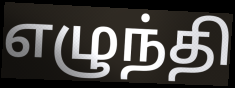
எழுந்தி